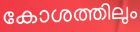
കോശത്തിലും